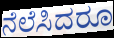
ನೆಲೆಸಿದರೂ